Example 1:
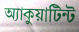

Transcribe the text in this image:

অ্যাকুয়াটিন্ট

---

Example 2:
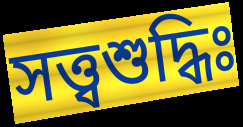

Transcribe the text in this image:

সত্ত্বশুদ্ধিঃ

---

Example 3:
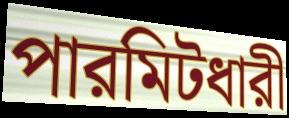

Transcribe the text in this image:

পারমিটধারী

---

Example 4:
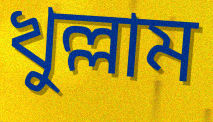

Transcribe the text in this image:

খুল্লাম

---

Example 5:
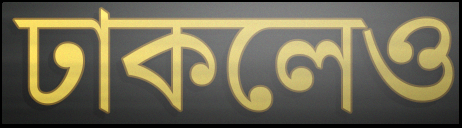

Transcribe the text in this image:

ঢাকলেও